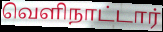
வெளிநாட்டார்